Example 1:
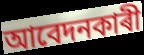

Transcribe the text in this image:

আবেদনকাৰী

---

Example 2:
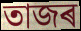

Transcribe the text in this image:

তাজৰ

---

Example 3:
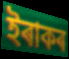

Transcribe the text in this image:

ইৰাকৰ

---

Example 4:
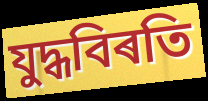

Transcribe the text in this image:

যুদ্ধবিৰতি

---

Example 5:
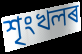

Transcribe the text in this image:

শৃংখলৰ